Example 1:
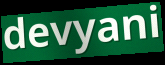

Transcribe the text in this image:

devyani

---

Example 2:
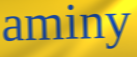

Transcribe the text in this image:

aminy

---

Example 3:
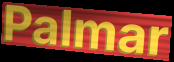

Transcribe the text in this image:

Palmar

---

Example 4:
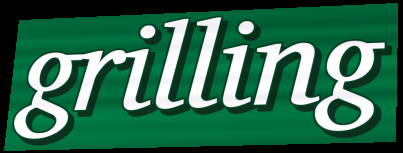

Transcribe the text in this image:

grilling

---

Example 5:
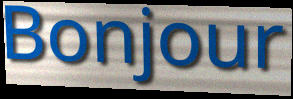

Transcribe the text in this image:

Bonjour